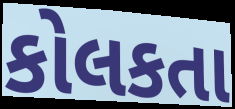
કોલકતા